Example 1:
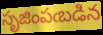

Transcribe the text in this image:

సృజింపఁబడిన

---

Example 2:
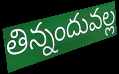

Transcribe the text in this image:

తిన్నందువల్ల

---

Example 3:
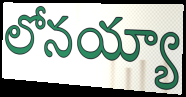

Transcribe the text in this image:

లోనయ్యా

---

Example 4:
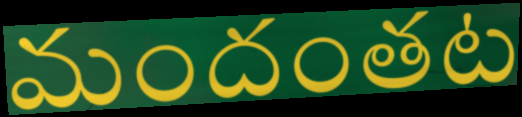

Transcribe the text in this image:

మందంతట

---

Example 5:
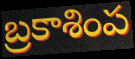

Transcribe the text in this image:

బ్రకాశింప